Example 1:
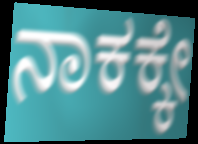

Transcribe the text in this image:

ನಾಕಕ್ಕೇ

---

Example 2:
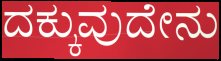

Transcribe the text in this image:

ದಕ್ಕುವುದೇನು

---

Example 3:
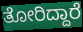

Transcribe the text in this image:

ತೋರಿದ್ದಾರೆ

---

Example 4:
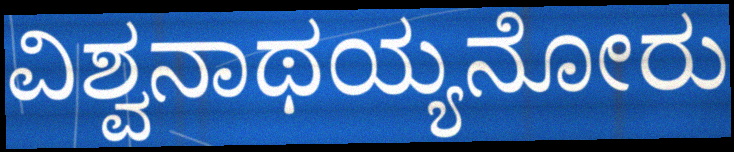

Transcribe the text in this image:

ವಿಶ್ವನಾಥಯ್ಯನೋರು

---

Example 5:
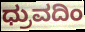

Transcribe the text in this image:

ಧ್ರುವದಿಂ